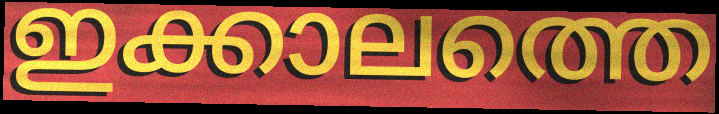
ഇക്കാലത്തെ